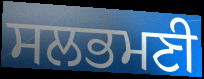
ਸਲਭਮਣੀ